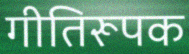
गीतिरूपक